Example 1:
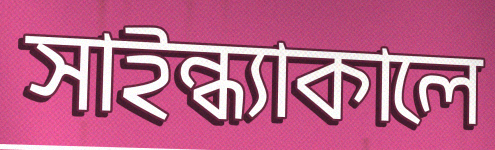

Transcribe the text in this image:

সাইন্ধ্যাকালে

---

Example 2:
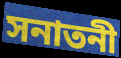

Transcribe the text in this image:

সনাতনী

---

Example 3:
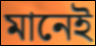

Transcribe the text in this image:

মানেই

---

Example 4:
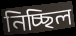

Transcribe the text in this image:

নিচ্ছিল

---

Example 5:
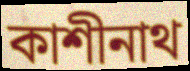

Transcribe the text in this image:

কাশীনাথ